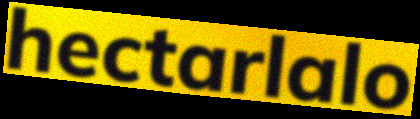
hectarlalo